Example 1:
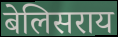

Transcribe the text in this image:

बेलिसराय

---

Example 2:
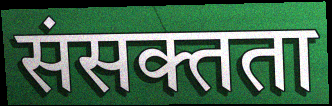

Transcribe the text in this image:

संसक्तता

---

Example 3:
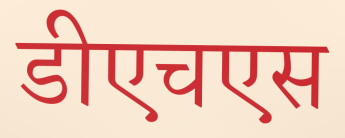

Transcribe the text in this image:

डीएचएस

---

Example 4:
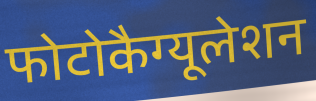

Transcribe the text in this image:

फोटोकैग्यूलेशन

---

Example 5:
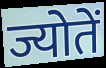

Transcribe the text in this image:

ज्योतें